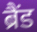
ब्रैंड